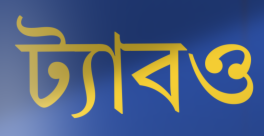
ট্যাবও